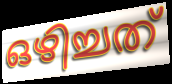
ഒഴിച്ചത്